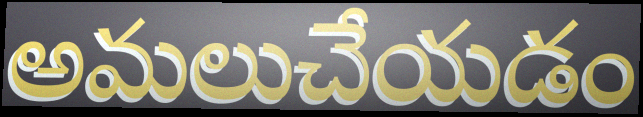
అమలుచేయడం